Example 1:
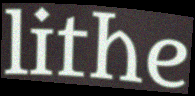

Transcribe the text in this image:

lithe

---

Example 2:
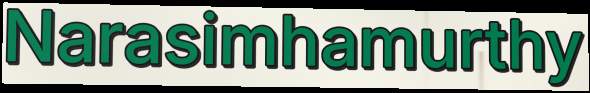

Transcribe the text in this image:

Narasimhamurthy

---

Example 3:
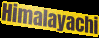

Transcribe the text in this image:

Himalayachi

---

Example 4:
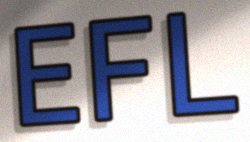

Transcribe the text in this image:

EFL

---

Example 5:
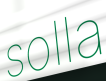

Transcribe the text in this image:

solla